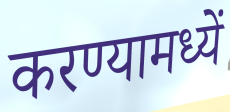
करण्यामध्यें